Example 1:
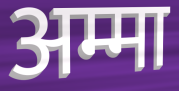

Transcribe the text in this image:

अम्‍मा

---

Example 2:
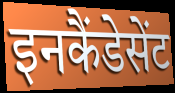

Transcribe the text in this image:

इनकैंडेसेंट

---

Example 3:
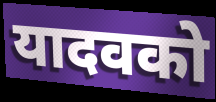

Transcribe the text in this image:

यादवको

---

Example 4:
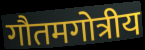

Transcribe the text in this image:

गौतमगोत्रीय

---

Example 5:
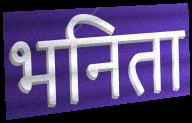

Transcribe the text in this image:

भनिता